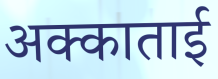
अक्काताई